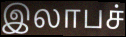
இலாபச்